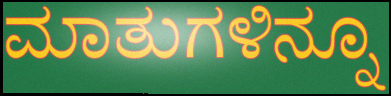
ಮಾತುಗಳಿನ್ನೂ